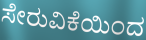
ಸೇರುವಿಕೆಯಿಂದ